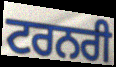
ਟਰਨਰੀ